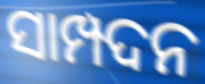
ସାମ୍ପଦନ